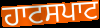
ਹਾਟਸਪਾਟ